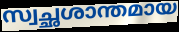
സ്വച്ഛശാന്തമായ